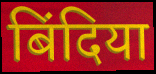
बिंदिया